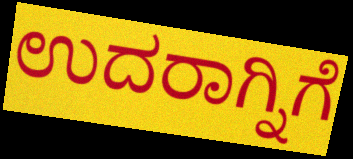
ಉದರಾಗ್ನಿಗೆ